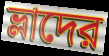
ভ্লাদের